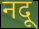
नदू